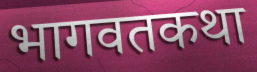
भागवतकथा